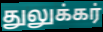
துலுக்கர்